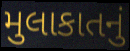
મુલાકાતનું